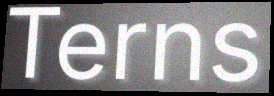
Terns